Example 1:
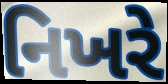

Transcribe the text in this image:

નિખરે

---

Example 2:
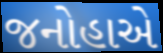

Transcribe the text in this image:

જનોહાએ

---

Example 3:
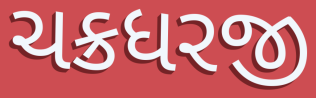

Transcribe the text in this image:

ચક્રધરજી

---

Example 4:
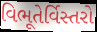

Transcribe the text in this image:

વિભૂતેર્વિસ્તરો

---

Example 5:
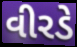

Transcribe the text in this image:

વીરડે